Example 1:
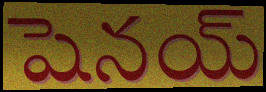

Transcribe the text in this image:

షెనయ్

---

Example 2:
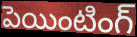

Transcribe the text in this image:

పెయింటింగ్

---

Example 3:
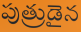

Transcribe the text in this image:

పుత్రుడైన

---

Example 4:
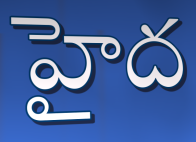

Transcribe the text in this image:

హైద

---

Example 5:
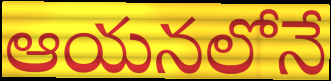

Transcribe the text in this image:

ఆయనలోనే